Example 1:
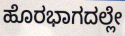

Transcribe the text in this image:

ಹೊರಭಾಗದಲ್ಲೇ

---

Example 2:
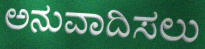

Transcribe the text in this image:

ಅನುವಾದಿಸಲು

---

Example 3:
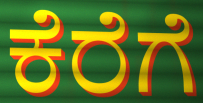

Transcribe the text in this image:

ಕೆರೆಗೆ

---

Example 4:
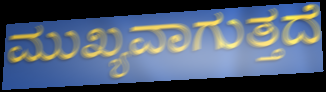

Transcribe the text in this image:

ಮುಖ್ಯವಾಗುತ್ತದೆ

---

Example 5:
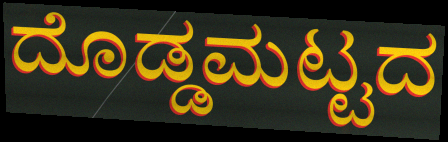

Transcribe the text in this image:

ದೊಡ್ಡಮಟ್ಟದ